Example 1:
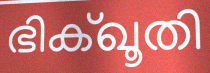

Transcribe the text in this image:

ഭിക്ഖൂതി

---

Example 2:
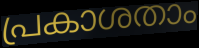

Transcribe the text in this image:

പ്രകാശതാം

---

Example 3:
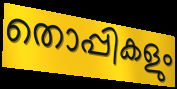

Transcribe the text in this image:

തൊപ്പികളും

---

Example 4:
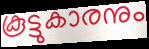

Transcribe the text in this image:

കൂട്ടുകാരനും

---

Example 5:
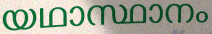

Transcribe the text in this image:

യഥാസ്ഥാനം